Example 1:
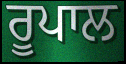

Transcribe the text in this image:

ਰੂਪਾਲ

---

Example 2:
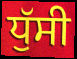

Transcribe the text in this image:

ਧੁੱਸੀ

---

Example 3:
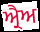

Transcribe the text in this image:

ਅ੍ਰੈਅ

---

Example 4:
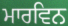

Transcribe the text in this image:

ਮਾਰਵਿਨ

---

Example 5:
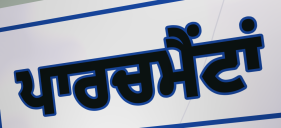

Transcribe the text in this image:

ਪਾਰਚਮੈਂਟਾਂ